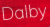
Dalby